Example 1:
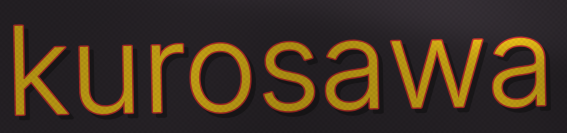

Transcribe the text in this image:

kurosawa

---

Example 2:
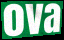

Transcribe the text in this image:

ova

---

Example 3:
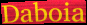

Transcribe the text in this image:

Daboia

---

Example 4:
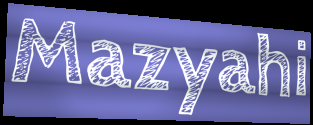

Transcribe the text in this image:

Mazyahi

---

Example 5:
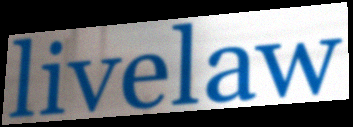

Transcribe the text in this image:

livelaw